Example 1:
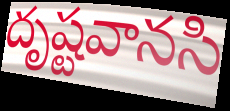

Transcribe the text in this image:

దృష్టవానసి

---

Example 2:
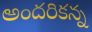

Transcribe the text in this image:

అందరికన్న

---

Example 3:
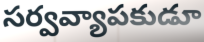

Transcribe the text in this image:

సర్వవ్యాపకుడూ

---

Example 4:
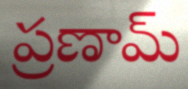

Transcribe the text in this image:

ప్రణామ్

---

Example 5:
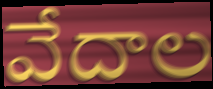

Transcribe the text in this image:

వేదాల